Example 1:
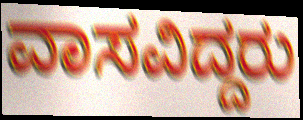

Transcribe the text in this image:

ವಾಸವಿದ್ದರು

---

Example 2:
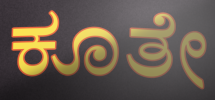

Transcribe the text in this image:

ಕೂತೇ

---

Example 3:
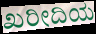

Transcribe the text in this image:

ಖರೀದಿಯ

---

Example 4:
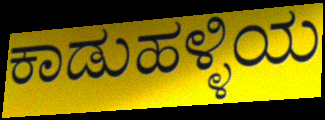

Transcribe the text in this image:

ಕಾಡುಹಳ್ಳಿಯ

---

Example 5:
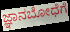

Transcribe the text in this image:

ಜ್ಞಾನಬೋಧೆಗೆ